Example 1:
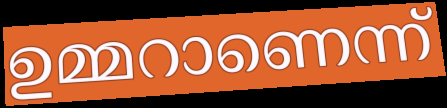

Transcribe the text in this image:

ഉമ്മറാണെന്ന്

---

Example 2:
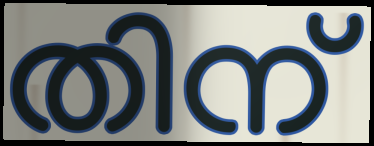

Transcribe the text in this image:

തിന്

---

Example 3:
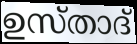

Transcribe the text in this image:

ഉസ്താദ്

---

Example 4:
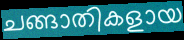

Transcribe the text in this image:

ചങ്ങാതികളായ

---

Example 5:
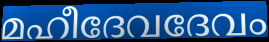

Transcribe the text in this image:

മഹീദേവദേവം